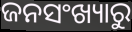
ଜନସଂଖ୍ୟାରୁ